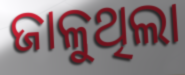
ଜାଳୁଥିଲା